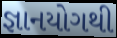
જ્ઞાનયોગથી